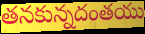
తనకున్నదంతయు